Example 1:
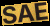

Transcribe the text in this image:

SAE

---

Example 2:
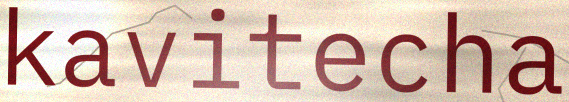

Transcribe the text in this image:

kavitecha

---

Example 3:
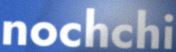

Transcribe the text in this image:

nochchi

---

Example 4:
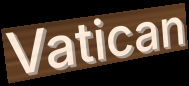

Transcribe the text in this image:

Vatican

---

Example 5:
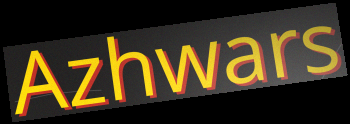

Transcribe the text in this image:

Azhwars